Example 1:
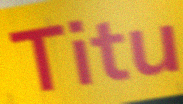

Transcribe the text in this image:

Titu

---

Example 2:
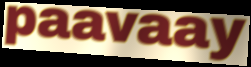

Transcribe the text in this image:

paavaay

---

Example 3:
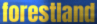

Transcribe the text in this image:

forestland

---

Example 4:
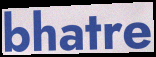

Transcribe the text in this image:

bhatre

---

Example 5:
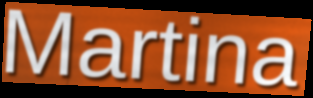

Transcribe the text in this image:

Martina